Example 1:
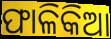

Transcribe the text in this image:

ଫାଳିକିଆ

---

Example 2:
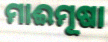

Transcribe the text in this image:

ମାଈମୂଷା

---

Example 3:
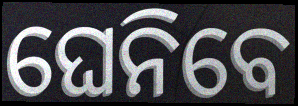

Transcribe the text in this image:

ଘେନିବେ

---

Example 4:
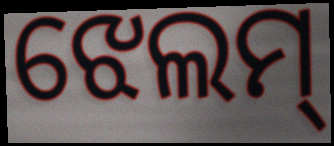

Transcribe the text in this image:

ଝେଲମ୍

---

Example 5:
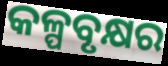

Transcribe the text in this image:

କଳ୍ପବୃକ୍ଷର